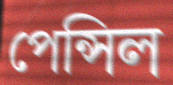
পেন্সিল